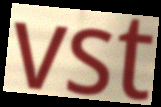
vst